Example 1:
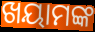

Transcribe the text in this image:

ଖୟାମଙ୍କ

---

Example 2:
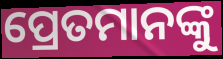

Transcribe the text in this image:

ପ୍ରେତମାନଙ୍କୁ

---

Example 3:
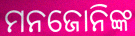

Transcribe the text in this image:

ମନଜୋନିଙ୍କ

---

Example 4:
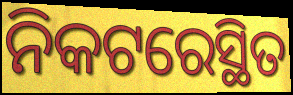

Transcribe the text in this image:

ନିକଟରେସ୍ଥିତ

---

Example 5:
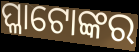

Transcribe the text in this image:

ପ୍ଳାଟୋଙ୍କର